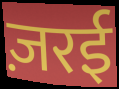
ज़रई